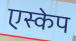
एस्केप